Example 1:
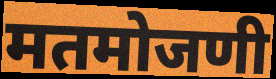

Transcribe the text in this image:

मतमोजणी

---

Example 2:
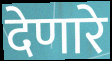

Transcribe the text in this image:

देणारे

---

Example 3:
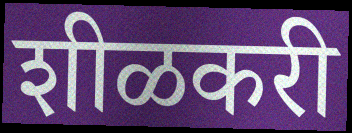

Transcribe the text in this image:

शीळकरी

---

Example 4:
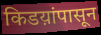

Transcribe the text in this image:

किडय़ांपासून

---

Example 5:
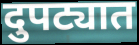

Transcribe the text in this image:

दुपट्यात